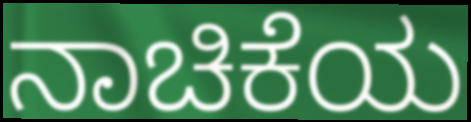
ನಾಚಿಕೆಯ